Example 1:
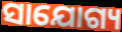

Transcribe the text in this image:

ସାଯୋଗ୍ୟ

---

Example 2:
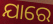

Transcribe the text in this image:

ଯାରେ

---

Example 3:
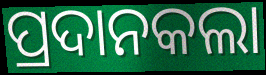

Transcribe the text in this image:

ପ୍ରଦାନକଲା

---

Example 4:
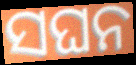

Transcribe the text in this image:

ସଘନ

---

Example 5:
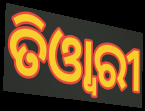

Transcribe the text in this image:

ତିଓ୍ଵାରୀ